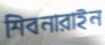
শিবনারাইন